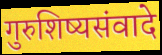
गुरुशिष्यसंवादे